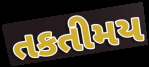
તકતીમય